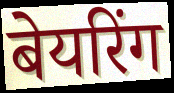
बेयरिंग